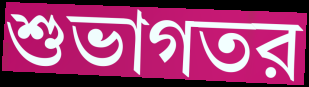
শুভাগতর